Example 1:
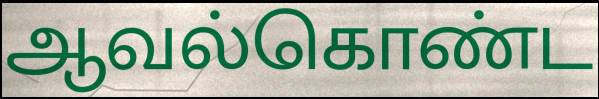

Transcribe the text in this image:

ஆவல்கொண்ட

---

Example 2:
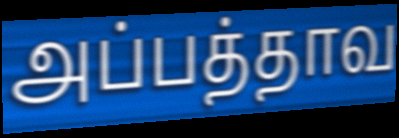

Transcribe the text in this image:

அப்பத்தாவ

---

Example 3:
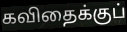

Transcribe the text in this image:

கவிதைக்குப்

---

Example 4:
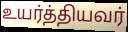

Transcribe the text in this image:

உயர்த்தியவர்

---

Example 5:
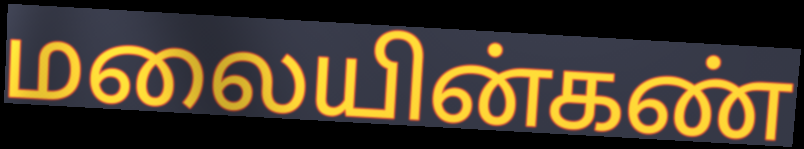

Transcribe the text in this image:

மலையின்கண்